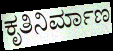
ಕೃತಿನಿರ್ಮಾಣ